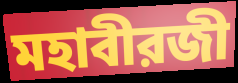
মহাবীরজী